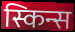
स्किन्स